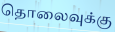
தொலைவுக்கு